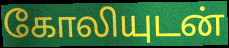
கோலியுடன்